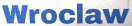
Wroclaw